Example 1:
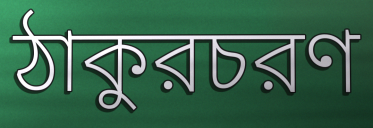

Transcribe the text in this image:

ঠাকুরচরণ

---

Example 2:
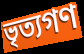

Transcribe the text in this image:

ভৃত্যগণ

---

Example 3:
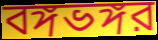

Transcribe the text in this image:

বঙ্গভঙ্গর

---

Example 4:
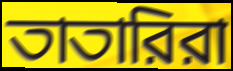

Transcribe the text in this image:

তাতারিরা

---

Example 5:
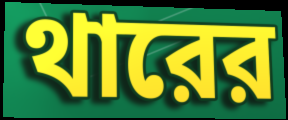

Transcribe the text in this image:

থারের